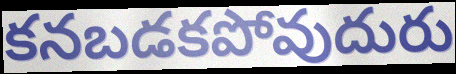
కనబడకపోవుదురు